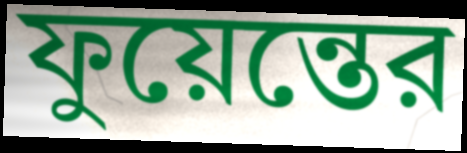
ফুয়েন্তের